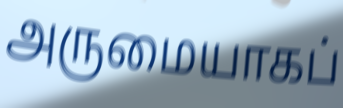
அருமையாகப்